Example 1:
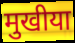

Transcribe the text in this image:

मुखीया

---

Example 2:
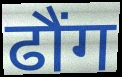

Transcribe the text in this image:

ढौंग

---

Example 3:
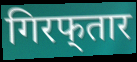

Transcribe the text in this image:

गिरफ्‌तार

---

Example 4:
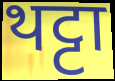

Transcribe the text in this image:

थट्टा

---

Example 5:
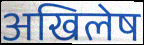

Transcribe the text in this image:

अखिलेष